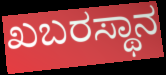
ಖಬರಸ್ಥಾನ